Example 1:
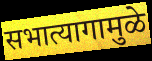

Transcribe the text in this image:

सभात्यागामुळे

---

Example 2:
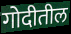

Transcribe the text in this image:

गोदीतील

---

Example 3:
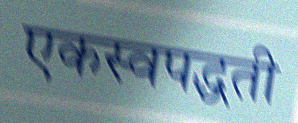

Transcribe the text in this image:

एकस्वपद्धती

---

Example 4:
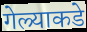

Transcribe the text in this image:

गेल्याकडे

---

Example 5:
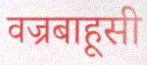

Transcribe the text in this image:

वज्रबाहूसी